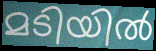
മടിയിൽ